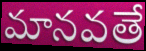
మానవతే